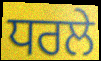
ਧਰਲੇ